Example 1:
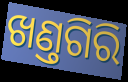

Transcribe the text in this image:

ଖଣ୍ତଗିରି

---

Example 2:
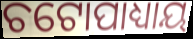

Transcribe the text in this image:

ଚଟୋପାଧ୍ୟାୟ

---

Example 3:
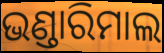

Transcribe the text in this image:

ଭଣ୍ଡାରିମାଲ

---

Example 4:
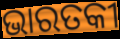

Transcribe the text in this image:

ଭାରତକୀ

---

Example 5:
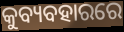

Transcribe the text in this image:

କୁବ୍ୟବହାରରେ